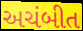
અચંબીત